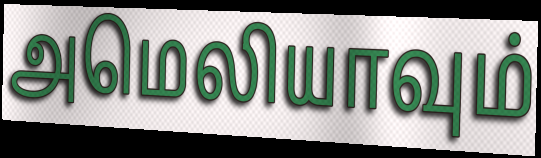
அமெலியாவும்